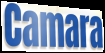
Camara